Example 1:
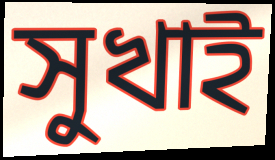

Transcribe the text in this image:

সুখাই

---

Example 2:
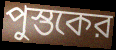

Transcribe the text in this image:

পুস্তকের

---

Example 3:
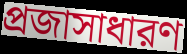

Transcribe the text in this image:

প্রজাসাধারণ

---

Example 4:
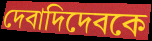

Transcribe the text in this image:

দেবাদিদেবকে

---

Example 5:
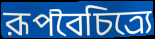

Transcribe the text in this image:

রূপবৈচিত্র্যে